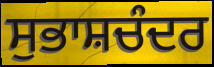
ਸੁਭਾਸ਼ਚੰਦਰ